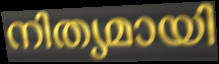
നിത്യമായി